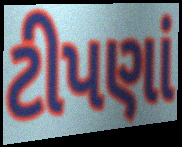
ટીપણાં